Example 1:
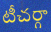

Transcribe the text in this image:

టీచర్గా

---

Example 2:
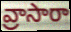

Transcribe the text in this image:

వ్రాసారా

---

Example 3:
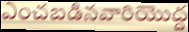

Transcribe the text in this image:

ఎంచబడినవారియొద్ద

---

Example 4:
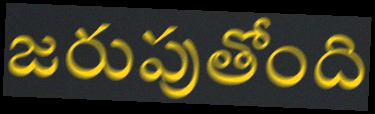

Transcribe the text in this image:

జరుపుతోంది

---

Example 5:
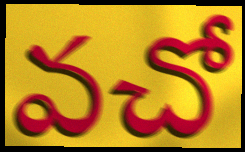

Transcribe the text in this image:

వచో